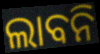
ଲାବନି